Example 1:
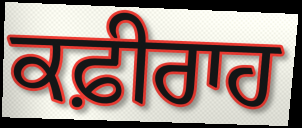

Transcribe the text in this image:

ਕਫ਼ੀਰਾਹ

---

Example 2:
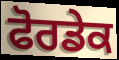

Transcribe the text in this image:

ਫੋਰਡੇਕ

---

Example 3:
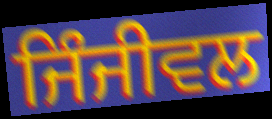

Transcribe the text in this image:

ਜਿੰਜੀਵਲ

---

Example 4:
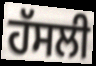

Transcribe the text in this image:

ਹੱਸਲੀ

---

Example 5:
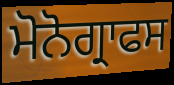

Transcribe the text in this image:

ਮੋਨੋਗ੍ਰਾਫਸ